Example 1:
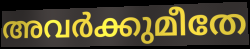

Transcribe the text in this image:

അവർക്കുമീതേ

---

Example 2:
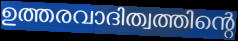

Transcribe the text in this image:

ഉത്തരവാദിത്വത്തിന്റെ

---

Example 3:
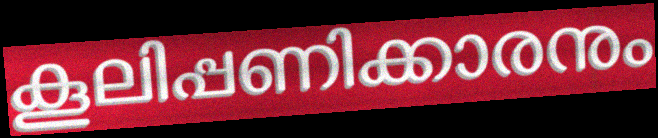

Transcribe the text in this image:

കൂലിപ്പണിക്കാരനും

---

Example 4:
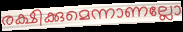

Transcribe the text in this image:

രക്ഷിക്കുമെന്നാണല്ലോ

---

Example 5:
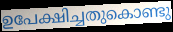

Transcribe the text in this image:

ഉപേക്ഷിച്ചതുകൊണ്ടു